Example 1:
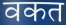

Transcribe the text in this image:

वकत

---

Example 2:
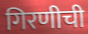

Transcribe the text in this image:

गिरणीची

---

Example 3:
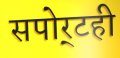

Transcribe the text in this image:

सपोर्टही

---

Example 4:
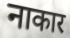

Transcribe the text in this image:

नाकार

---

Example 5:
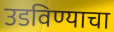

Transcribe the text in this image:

उडविण्याचा